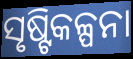
ସୃଷ୍ଟିକଳ୍ପନା